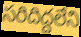
సరిదిద్దలేని